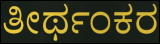
ತೀರ್ಥಂಕರ